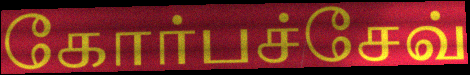
கோர்பச்சேவ்